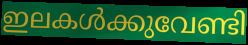
ഇലകൾക്കുവേണ്ടി